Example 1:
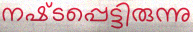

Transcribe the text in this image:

നഷ്‌ടപ്പെട്ടിരുന്നു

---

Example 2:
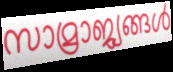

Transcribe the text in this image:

സാമ്രാജ്യങ്ങൾ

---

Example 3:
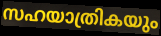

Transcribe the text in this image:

സഹയാത്രികയും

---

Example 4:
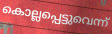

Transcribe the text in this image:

കൊല്ലപ്പെട്ടുവെന്ന്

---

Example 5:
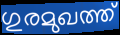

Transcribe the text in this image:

ഗുരമുഖത്ത്